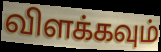
விளக்கவும்